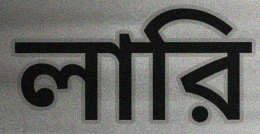
লারি